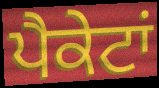
ਪੈਕੇਟਾਂ